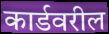
कार्डवरील